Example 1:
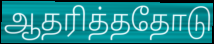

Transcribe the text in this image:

ஆதரித்ததோடு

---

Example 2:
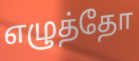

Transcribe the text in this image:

எழுத்தோ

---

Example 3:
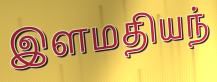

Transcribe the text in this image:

இளமதியந்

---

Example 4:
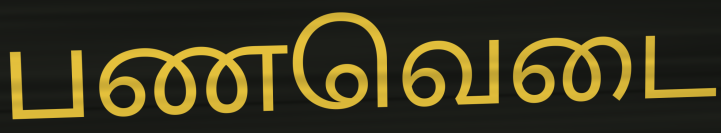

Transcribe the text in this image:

பணவெடை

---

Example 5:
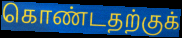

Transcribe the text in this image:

கொண்டதற்குக்